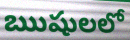
ఋషులలో